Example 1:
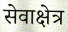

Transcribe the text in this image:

सेवाक्षेत्र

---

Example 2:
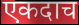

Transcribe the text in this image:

एकदाच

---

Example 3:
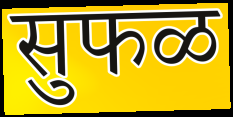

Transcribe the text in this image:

सुफळ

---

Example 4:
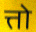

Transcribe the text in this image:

त्तो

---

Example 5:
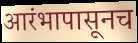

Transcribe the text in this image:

आरंभापासूनच